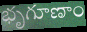
భృగూణాం